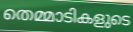
തെമ്മാടികളുടെ